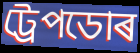
ট্ৰেপডোৰ